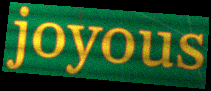
joyous